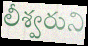
లీశ్వరుని